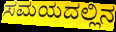
ಸಮಯದಲ್ಲಿನ